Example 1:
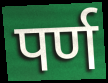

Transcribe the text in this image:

पर्ण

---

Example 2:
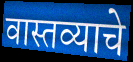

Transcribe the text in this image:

वास्तव्याचे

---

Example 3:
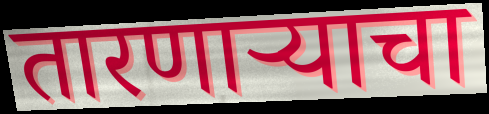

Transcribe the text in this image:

तारणाऱ्याचा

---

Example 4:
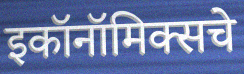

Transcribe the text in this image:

इकॉनॉमिक्सचे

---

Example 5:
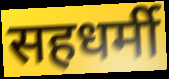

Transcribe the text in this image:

सहधर्मी